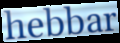
hebbar